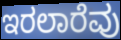
ಇರಲಾರೆವು